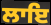
ਲਾਇ